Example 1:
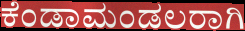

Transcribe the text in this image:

ಕೆಂಡಾಮಂಡಲರಾಗಿ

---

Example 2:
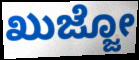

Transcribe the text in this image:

ಖುಜ್ಜೋ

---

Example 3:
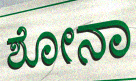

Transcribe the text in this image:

ಶೋನಾ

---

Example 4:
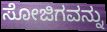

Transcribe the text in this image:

ಸೋಜಿಗವನ್ನು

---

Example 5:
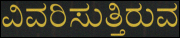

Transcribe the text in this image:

ವಿವರಿಸುತ್ತಿರುವ